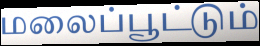
மலைப்பூட்டும்